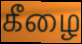
கீழை